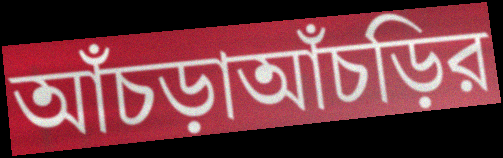
আঁচড়াআঁচড়ির